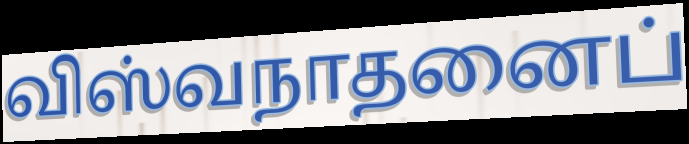
விஸ்வநாதனைப்